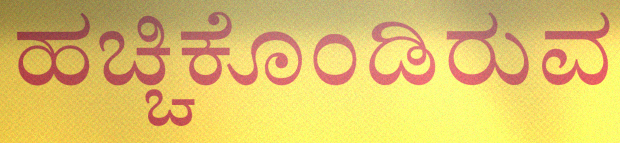
ಹಚ್ಚಿಕೊಂಡಿರುವ